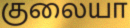
குலையா